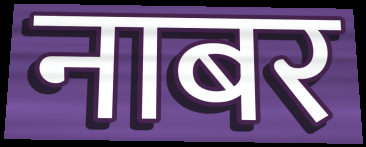
नाबर